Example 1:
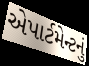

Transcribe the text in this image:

એપાર્ટમેન્ટનું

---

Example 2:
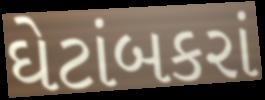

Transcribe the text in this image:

ઘેટાંબકરાં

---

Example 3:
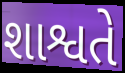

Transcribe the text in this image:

શાશ્વતે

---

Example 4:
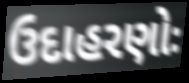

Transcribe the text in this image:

ઉદાહરણોઃ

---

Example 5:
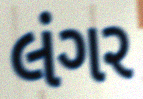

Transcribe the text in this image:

લંગર